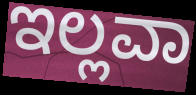
ಇಲ್ಲವಾ